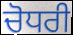
ਚੋਧਰੀ